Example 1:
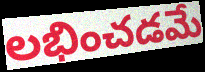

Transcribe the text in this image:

లభించడమే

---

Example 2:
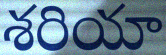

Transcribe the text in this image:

శరియా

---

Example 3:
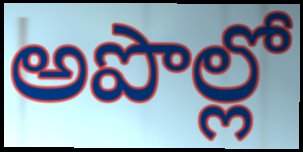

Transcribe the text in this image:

అపొల్లో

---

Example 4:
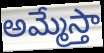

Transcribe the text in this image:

అమ్మేస్తా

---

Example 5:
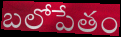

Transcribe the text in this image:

బలోపేతం